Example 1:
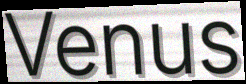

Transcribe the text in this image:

Venus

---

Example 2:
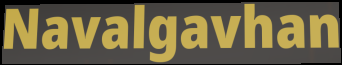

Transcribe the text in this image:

Navalgavhan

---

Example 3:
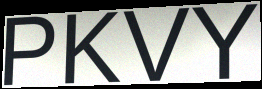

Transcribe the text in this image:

PKVY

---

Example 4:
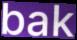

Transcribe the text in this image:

bak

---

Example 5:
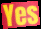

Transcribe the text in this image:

Yes